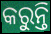
କରୁନ୍ତି